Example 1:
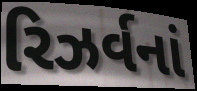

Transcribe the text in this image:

રિઝર્વનાં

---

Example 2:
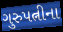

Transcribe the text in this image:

ગુરુપત્નીના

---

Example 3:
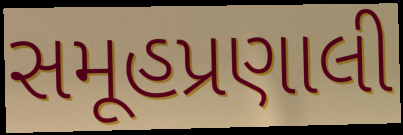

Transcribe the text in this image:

સમૂહપ્રણાલી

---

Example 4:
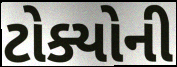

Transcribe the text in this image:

ટોક્યોની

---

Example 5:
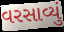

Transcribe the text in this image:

વરસાવ્યું